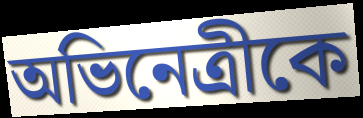
অভিনেত্রীকে